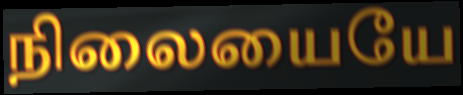
நிலையையே